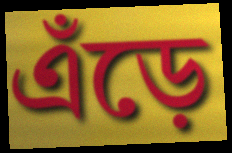
এঁড়ে